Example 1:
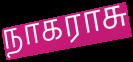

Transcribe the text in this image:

நாகராசு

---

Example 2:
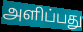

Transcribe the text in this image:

அளிப்பது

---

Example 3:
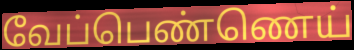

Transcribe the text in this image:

வேப்பெண்ணெய்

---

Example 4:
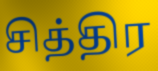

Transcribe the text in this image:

சித்திர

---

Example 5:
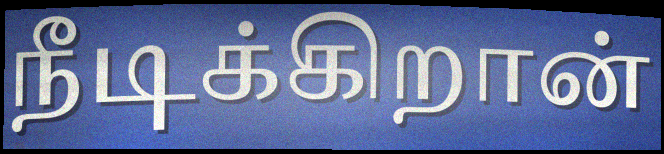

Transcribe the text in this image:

நீடிக்கிறான்